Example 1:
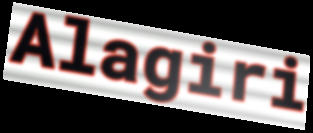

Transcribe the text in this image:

Alagiri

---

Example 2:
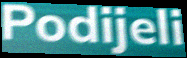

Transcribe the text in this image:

Podijeli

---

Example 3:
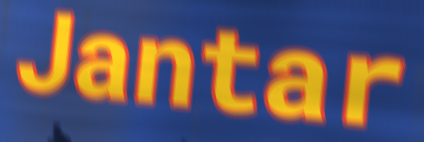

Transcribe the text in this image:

Jantar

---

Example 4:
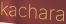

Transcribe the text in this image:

kachara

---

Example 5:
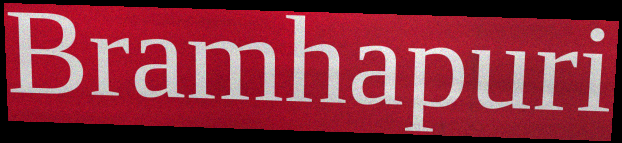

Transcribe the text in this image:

Bramhapuri